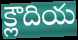
క్లౌదియ